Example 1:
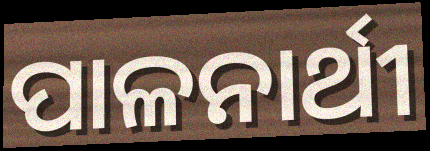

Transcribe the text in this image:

ପାଳନାର୍ଥୀ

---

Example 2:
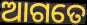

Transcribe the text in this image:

ଆଗତେ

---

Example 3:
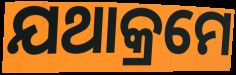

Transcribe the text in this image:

ଯଥାକ୍ରମେ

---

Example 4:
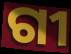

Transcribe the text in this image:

ଗୀ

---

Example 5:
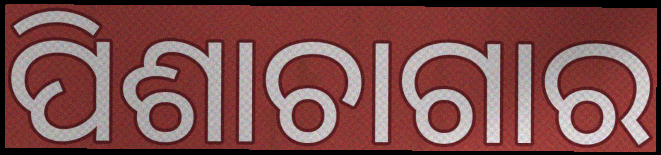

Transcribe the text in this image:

ପିଶାଚାଗାର